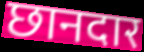
छानदार